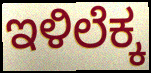
ಇಳಿಲೆಕ್ಕ